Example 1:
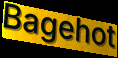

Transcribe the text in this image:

Bagehot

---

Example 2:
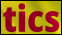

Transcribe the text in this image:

tics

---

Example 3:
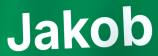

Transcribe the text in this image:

Jakob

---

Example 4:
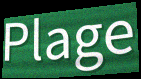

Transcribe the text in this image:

Plage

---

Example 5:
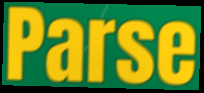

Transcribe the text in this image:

Parse